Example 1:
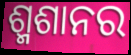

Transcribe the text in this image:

ଶ୍ମଶାନର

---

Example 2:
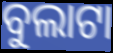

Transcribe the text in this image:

ବୁଲାଟା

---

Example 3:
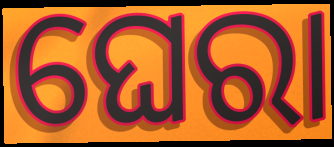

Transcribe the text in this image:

ଘେରା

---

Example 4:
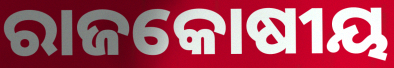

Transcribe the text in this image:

ରାଜକୋଷୀୟ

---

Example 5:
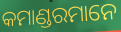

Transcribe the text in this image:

କମାଣ୍ଡରମାନେ